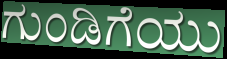
ಗುಂಡಿಗೆಯು